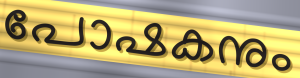
പോഷകനും